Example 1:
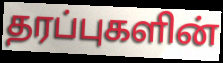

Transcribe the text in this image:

தரப்புகளின்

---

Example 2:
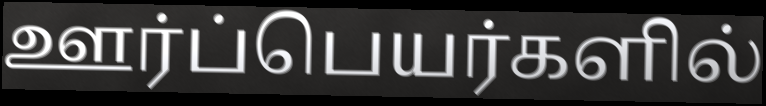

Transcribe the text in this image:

ஊர்ப்பெயர்களில்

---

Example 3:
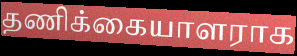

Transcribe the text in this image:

தணிக்கையாளராக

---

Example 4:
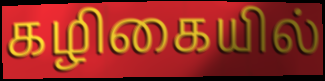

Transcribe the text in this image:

கழிகையில்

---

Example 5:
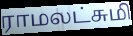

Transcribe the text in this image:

ராமலட்சுமி